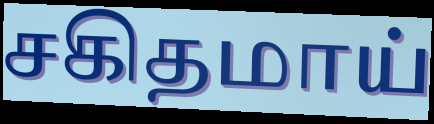
சகிதமாய்